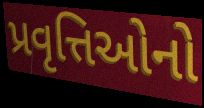
પ્રવૃત્તિઓનો